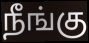
நீங்கு